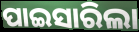
ପାଇସାରିଲା